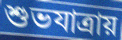
শুভযাত্রায়